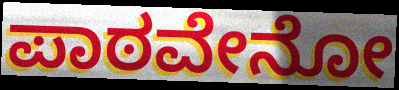
ಪಾಠವೇನೋ